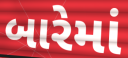
બારેમાં